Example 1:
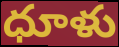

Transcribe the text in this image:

ధూళు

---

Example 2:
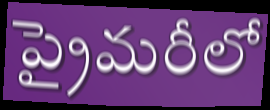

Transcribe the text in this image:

ప్రైమరీలో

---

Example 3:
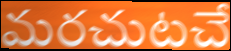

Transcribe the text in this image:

మరచుటచే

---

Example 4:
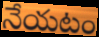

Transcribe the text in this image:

నేయటం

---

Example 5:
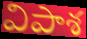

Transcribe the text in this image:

విపాశ